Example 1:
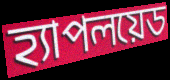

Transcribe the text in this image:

হ্যাপলয়েড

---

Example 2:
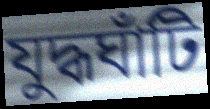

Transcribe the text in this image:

যুদ্ধঘাঁটি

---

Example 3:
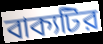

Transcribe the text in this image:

বাক্যটির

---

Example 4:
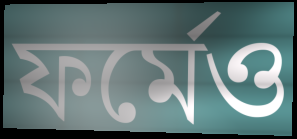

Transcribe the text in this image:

ফর্মেও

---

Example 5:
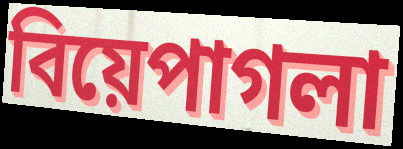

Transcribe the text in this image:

বিয়েপাগলা